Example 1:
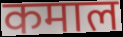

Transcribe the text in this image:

कमाल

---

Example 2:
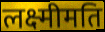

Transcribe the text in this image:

लक्ष्मीमति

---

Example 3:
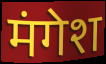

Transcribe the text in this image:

मंगेश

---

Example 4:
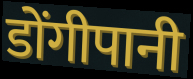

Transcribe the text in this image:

डोंगीपानी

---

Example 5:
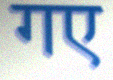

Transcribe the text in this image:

गए